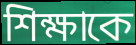
শিক্ষাকে